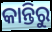
କାନ୍ତିରୁ